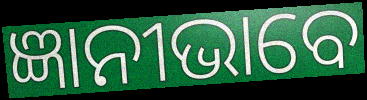
ଜ୍ଞାନୀଭାବେ